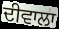
ਦੀਵਾਲਾ